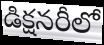
డిక్షనరీలో